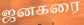
ஜனகரை